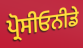
ਪ੍ਰੋਸੀਓਨੀਡੇ